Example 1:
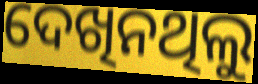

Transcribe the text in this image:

ଦେଖିନଥିଲୁ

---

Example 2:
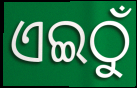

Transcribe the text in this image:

ଏଇଠୁଁ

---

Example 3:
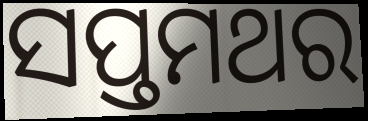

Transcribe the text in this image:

ସପ୍ତମଥର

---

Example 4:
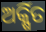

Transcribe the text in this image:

ଅର୍କ୍ଷିତ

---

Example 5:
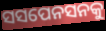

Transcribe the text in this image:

ସସପେନସନକୁ